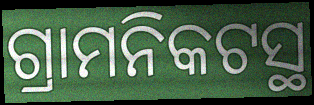
ଗ୍ରାମନିକଟସ୍ଥ